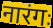
नारंगः